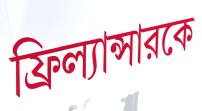
ফ্রিল্যান্সারকে